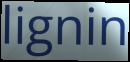
lignin